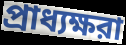
প্রাধ্যক্ষরা